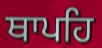
ਥਾਪਹਿ